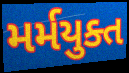
મર્મયુક્ત